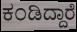
ಕಂಡಿದ್ದಾರೆ